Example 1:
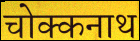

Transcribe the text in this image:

चोक्कनाथ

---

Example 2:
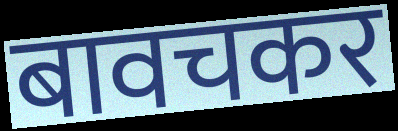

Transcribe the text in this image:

बावचकर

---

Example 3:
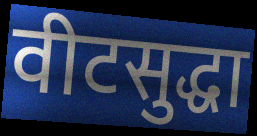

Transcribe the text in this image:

वीटसुद्धा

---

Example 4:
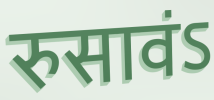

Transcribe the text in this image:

रुसावंऽ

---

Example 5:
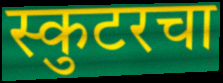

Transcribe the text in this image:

स्कुटरचा